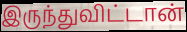
இருந்துவிட்டான்